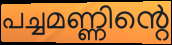
പച്ചമണ്ണിന്റെ